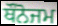
ਥੌਨੋਜਮ